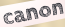
canon